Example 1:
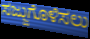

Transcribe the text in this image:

ಸಜ್ಜುಗೊಳಿಸಲು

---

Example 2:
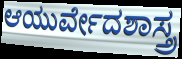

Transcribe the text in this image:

ಆಯುರ್ವೇದಶಾಸ್ತ್ರ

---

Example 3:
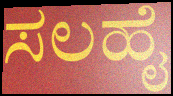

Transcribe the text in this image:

ಸಲಹೈ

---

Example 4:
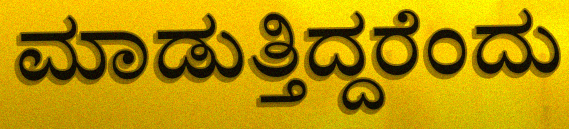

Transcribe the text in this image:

ಮಾಡುತ್ತಿದ್ದರೆಂದು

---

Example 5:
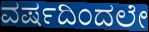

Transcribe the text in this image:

ವರ್ಷದಿಂದಲೇ